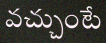
వచ్చుంటే